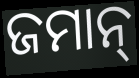
ଜମାନ୍